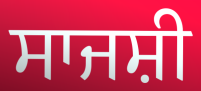
ਸਾਜਸ਼ੀ